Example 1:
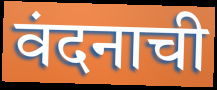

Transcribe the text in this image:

वंदनाची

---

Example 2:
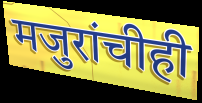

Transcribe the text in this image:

मजुरांचीही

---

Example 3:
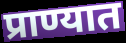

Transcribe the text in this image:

प्राण्यात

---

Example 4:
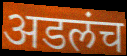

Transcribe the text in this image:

अडलंच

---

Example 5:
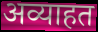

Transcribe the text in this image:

अव्याहत